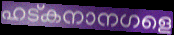
ഹട്കനാനഗളെ